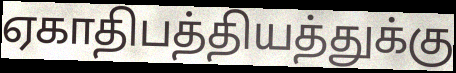
ஏகாதிபத்தியத்துக்கு